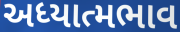
અધ્યાત્મભાવ